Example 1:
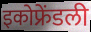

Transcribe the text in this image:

इकोफ्रेंडली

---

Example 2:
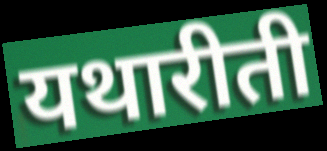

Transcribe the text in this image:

यथारीती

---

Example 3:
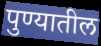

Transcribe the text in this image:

पुण्यातील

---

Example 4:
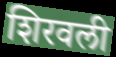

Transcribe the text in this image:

शिरवली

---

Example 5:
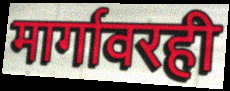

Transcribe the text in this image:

मार्गावरही